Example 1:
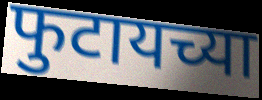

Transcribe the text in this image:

फुटायच्या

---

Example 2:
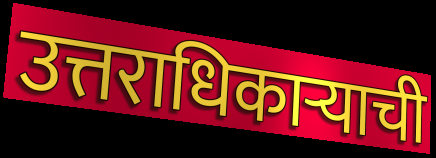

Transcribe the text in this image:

उत्तराधिकाऱ्याची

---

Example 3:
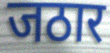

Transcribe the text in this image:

जठार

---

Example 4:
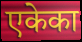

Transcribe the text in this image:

एकेका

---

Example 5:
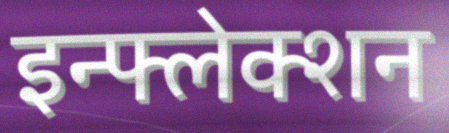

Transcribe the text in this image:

इन्फ्लेक्शन